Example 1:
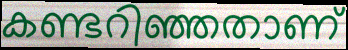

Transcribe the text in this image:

കണ്ടറിഞ്ഞതാണ്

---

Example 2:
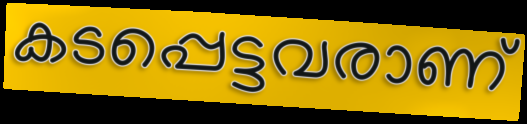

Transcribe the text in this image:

കടപ്പെട്ടവരാണ്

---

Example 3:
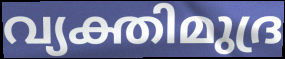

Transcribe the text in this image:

വ്യക്തിമുദ്ര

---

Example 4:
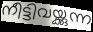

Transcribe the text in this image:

നീട്ടിവയ്ക്കുന്ന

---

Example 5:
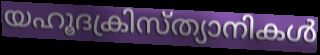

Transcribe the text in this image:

യഹൂദക്രിസ്ത്യാനികൾ